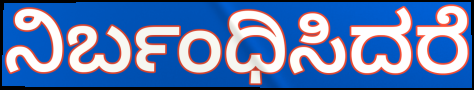
ನಿರ್ಬಂಧಿಸಿದರೆ